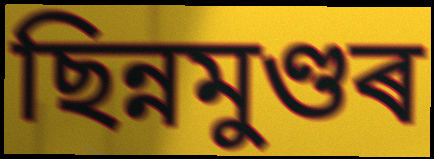
ছিন্নমুণ্ডৰ